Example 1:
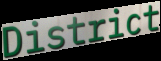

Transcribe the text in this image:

District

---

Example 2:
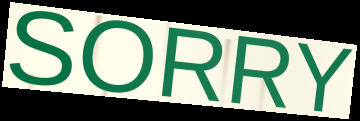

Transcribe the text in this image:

SORRY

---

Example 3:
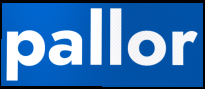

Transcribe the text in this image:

pallor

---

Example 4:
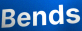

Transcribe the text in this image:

Bends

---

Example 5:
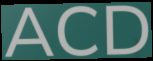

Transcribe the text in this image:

ACD